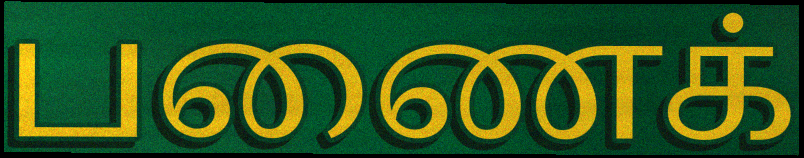
பணைக்